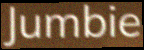
Jumbie